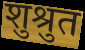
शुश्रुत